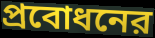
প্রবোধনের